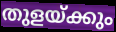
തുളയ്ക്കും